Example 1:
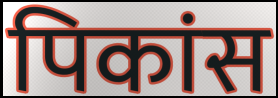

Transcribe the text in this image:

पिकांस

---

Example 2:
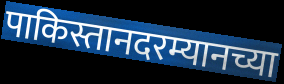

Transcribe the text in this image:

पाकिस्तानदरम्यानच्या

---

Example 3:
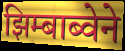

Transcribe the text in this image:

झिम्बाब्वेने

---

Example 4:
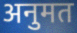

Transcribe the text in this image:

अनुमत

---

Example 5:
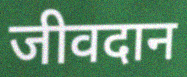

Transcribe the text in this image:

जीवदान